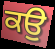
ਕਉੁ